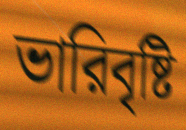
ভারিবৃষ্টি